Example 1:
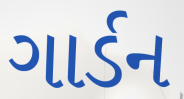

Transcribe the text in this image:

ગાર્ડન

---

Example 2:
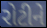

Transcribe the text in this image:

રોટીને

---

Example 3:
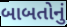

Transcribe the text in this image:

બાબતોનું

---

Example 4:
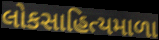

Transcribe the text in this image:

લોકસાહિત્યમાળા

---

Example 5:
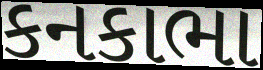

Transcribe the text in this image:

કનકાભા